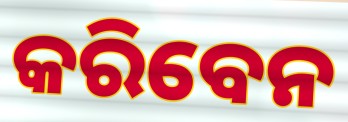
କରିବେନ